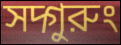
সদ্গুরুং